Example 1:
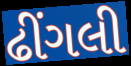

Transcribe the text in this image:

ઢીંગલી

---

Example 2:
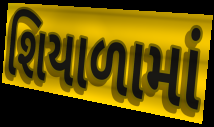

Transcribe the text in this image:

શિયાળામાં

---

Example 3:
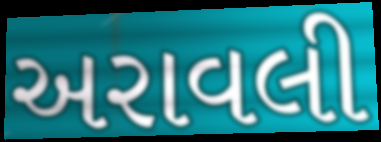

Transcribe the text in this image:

અરાવલી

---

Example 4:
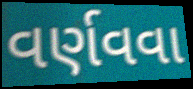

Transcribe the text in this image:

વર્ણવવા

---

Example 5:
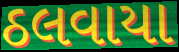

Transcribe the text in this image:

ઠલવાયા